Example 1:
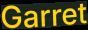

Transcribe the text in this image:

Garret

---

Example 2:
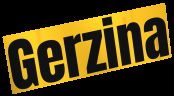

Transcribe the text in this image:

Gerzina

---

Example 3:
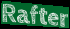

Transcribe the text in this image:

Rafter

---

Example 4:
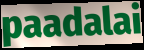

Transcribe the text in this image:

paadalai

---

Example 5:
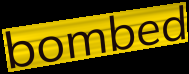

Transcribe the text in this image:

bombed